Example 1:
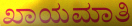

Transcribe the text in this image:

ಖಾಯಮಾತಿ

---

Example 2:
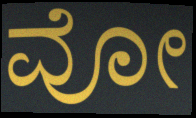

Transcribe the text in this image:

ವೋ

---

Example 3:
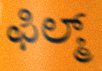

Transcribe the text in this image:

ಫಿಲ್ಮ್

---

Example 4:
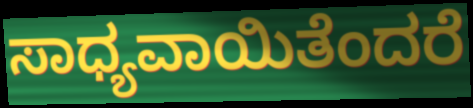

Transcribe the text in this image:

ಸಾಧ್ಯವಾಯಿತೆಂದರೆ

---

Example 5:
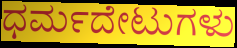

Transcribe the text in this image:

ಧರ್ಮದೇಟುಗಳು